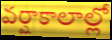
వర్షాకాలాల్లో